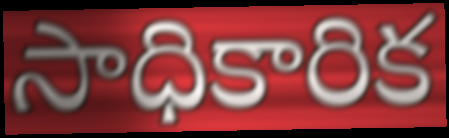
సాధికారిక